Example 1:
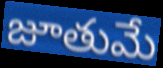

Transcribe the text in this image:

జూతుమే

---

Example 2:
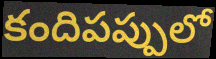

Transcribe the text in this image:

కందిపప్పులో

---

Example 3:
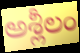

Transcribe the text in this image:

అశ్లీలం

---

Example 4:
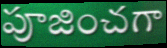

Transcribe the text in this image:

పూజించగా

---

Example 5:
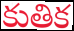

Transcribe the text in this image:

కుతిక